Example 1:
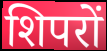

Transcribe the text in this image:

शिपरों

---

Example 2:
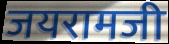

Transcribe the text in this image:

जयरामजी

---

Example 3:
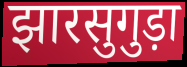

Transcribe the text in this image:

झारसुगुड़ा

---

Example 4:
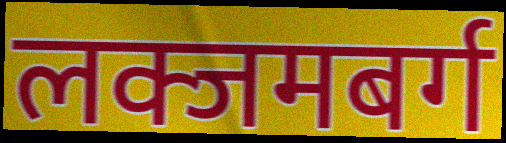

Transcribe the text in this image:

लक्जमबर्ग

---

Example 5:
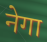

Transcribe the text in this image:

नेगा